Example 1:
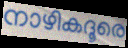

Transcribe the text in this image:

നാഴികദൂരെ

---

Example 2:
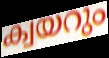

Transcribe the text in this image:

ക്വയറും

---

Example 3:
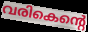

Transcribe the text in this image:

വരികെന്റെ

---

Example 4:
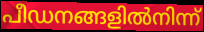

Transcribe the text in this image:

പീഡനങ്ങളിൽനിന്ന്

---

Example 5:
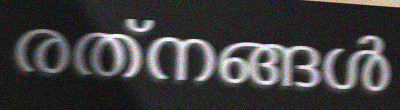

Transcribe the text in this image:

രത്‌നങ്ങൾ